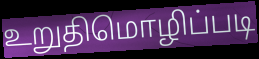
உறுதிமொழிப்படி